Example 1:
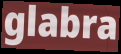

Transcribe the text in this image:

glabra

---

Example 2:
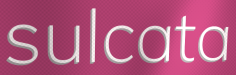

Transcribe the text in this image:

sulcata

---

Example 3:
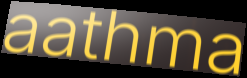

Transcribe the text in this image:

aathma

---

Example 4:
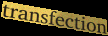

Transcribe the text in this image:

transfection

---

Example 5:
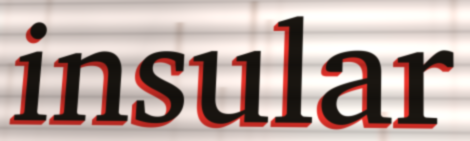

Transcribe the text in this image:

insular